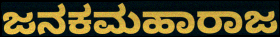
ಜನಕಮಹಾರಾಜ